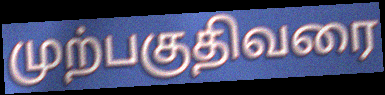
முற்பகுதிவரை